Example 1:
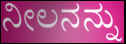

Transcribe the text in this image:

ನೀಲನನ್ನು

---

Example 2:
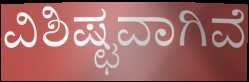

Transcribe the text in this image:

ವಿಶಿಷ್ಟವಾಗಿವೆ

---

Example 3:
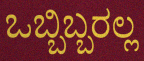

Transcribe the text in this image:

ಒಬ್ಬಿಬ್ಬರಲ್ಲ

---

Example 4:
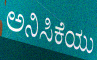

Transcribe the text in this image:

ಅನಿಸಿಕೆಯು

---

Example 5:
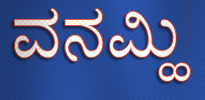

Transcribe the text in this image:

ವನಮ್ಹಿ